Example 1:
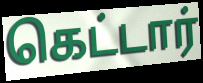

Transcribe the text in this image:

கெட்டார்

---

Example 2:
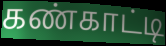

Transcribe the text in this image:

கண்காட்டி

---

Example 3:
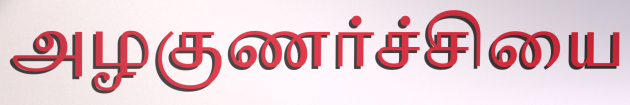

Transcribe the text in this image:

அழகுணர்ச்சியை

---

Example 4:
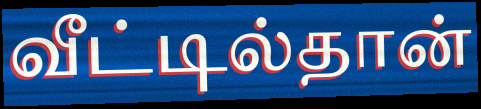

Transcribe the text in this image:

வீட்டில்தான்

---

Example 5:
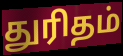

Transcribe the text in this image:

துரிதம்